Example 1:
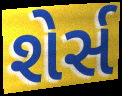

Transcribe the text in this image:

શેર્સ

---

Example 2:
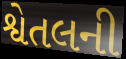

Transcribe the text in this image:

શ્વેતલની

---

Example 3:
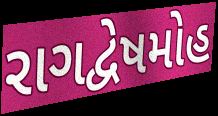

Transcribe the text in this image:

રાગદ્વેષમોહ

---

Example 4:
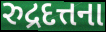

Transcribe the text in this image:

રુદ્રદત્તના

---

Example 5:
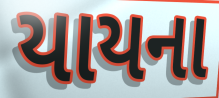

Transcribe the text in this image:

યાયના